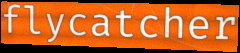
flycatcher